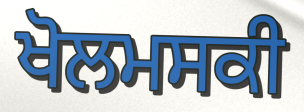
ਖੋਲਮਸਕੀ